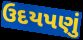
ઉદયપણું